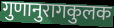
गुणानुरागकुलक